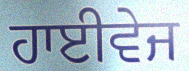
ਹਾਈਵੇਜ